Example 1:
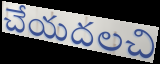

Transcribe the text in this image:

చేయదలచి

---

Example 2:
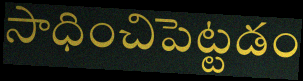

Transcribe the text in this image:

సాధించిపెట్టడం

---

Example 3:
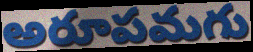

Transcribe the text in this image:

అరూపమగు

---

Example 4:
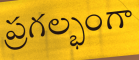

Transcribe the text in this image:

ప్రగల్భంగా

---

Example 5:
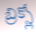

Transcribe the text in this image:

బ్రిక్స్లో